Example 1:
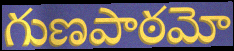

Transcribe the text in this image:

గుణపాఠమో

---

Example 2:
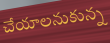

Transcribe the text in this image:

చేయాలనుకున్న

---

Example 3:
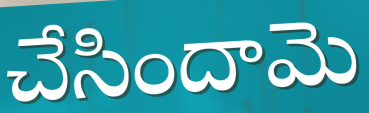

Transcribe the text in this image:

చేసిందామె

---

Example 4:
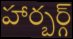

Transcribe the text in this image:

హార్బర్గ్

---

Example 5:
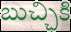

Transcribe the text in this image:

బుచ్చికి